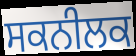
ਸਕਨੀਲਕ